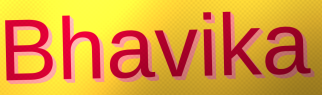
Bhavika